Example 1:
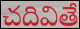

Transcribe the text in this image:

చదివితే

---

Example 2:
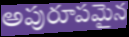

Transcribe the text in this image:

అపురూపమైన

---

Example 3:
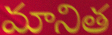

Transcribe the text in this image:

మానిత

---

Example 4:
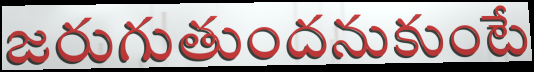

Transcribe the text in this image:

జరుగుతుందనుకుంటే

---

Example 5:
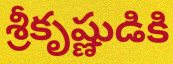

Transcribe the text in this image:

శ్రీకృష్ణుడికి